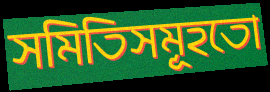
সমিতিসমূহতো